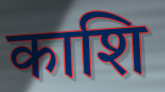
काशि